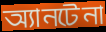
অ্যানটেনা